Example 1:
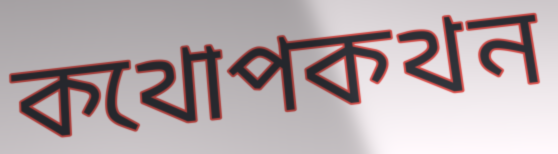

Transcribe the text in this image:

কথোপকথন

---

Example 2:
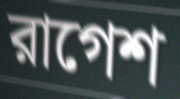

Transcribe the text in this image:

রাগেশ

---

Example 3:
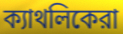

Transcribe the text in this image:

ক্যাথলিকেরা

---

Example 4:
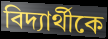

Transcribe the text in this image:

বিদ্যার্থীকে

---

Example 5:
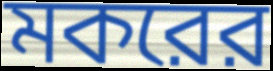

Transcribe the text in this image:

মকরের